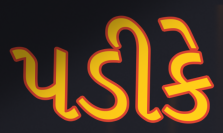
પડીકે